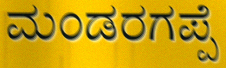
ಮಂಡರಗಪ್ಪೆ